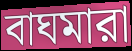
বাঘমারা